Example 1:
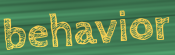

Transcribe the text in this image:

behavior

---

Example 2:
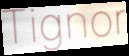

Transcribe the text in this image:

Tignor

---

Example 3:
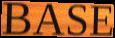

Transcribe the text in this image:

BASE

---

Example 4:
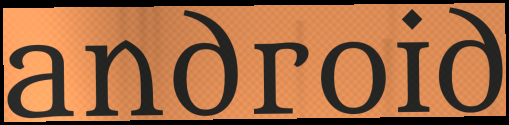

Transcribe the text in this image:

android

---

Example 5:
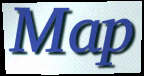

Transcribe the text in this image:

Map